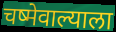
चष्मेवाल्याला